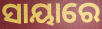
ସାୟାରେ